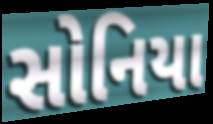
સોનિયા